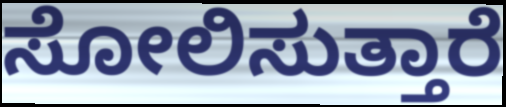
ಸೋಲಿಸುತ್ತಾರೆ